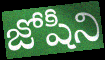
జోషీని